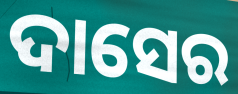
ଦାସେର